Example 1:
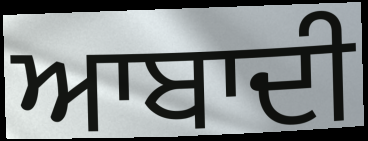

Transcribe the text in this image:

ਆਬਾਦੀ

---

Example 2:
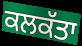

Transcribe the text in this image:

ਕਲਕੱਤਾ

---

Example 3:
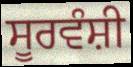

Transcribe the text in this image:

ਸੂਰਵੰਸ਼ੀ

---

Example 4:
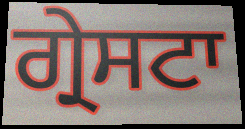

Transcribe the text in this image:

ਗ੍ਰੇਸਟਾ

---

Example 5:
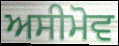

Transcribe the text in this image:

ਅਸੀਮੋਵ